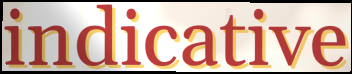
indicative